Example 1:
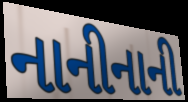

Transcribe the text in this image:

નાનીનાની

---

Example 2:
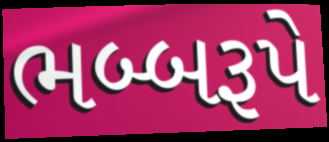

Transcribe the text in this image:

ભબ્બરૂપે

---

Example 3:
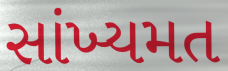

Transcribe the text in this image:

સાંખ્યમત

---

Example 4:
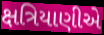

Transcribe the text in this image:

ક્ષત્રિયાણીએ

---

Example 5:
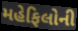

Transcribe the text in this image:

મહેફિલોની